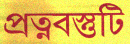
প্রত্নবস্তুটি